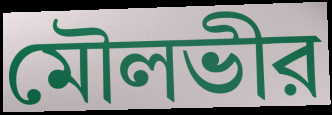
মৌলভীর